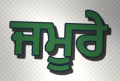
ਜਮੂਰੇ